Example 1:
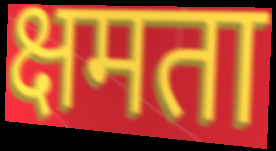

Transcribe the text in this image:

क्षमता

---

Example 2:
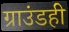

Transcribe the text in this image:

ग्राउंडही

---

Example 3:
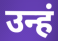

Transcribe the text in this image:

उन्हं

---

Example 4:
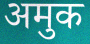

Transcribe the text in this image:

अमुक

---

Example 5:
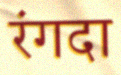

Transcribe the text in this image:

रंगदा